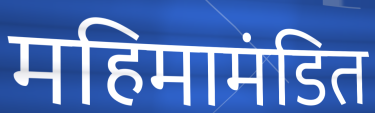
महिमामंडित